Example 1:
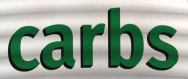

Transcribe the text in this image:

carbs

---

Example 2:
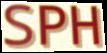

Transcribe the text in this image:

SPH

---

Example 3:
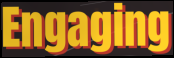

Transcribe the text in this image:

Engaging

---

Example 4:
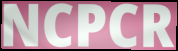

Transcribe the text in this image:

NCPCR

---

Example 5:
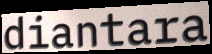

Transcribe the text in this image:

diantara